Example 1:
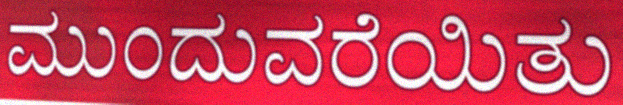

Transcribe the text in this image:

ಮುಂದುವರೆಯಿತು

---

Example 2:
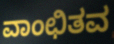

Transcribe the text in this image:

ವಾಂಛಿತವ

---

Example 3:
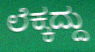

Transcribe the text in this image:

ಲೆಕ್ಕದ್ದು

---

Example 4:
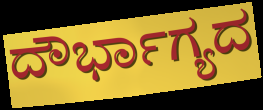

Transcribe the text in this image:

ದೌರ್ಭಾಗ್ಯದ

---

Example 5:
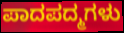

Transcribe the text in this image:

ಪಾದಪದ್ಮಗಳು